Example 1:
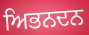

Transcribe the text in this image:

ਅਿਭਨਦਨ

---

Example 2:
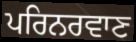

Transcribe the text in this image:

ਪਰਿਨਰਵਾਣ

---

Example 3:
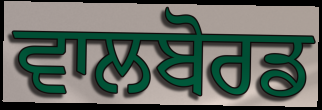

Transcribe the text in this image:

ਵਾਲਬੋਰਡ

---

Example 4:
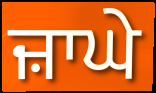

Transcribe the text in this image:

ਜ਼ਾਘੇ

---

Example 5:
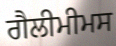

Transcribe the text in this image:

ਗੈਲੀਮੀਮਸ